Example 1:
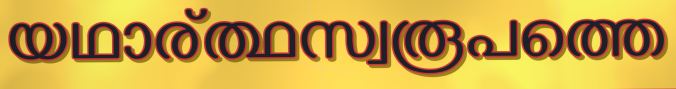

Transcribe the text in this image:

യഥാര്ത്ഥസ്വരൂപത്തെ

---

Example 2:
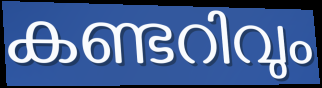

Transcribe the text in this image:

കണ്ടറിവും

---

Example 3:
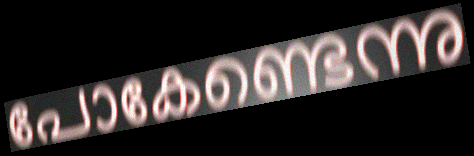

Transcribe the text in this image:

പോകേണ്ടെന്നു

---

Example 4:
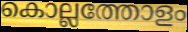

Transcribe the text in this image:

കൊല്ലത്തോളം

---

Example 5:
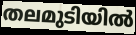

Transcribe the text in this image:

തലമുടിയിൽ